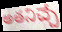
అతనిచ్చే